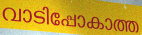
വാടിപ്പോകാത്ത